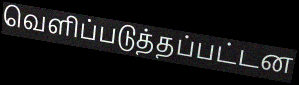
வெளிப்படுத்தப்பட்டன